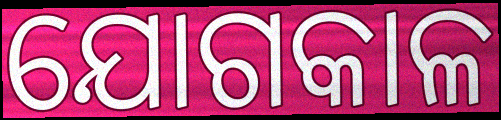
ଯୋଗକାଳ